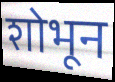
शोभून